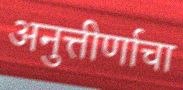
अनुत्तीर्णाचा